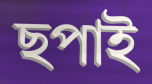
ছপাই